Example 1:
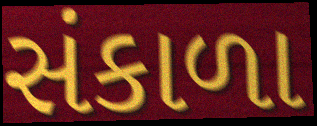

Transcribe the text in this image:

સંકાળા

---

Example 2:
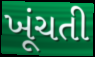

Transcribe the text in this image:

ખૂંચતી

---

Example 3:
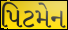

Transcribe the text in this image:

પિટમેન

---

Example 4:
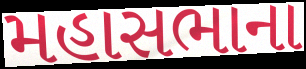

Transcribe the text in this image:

મહાસભાના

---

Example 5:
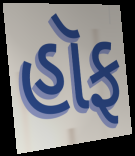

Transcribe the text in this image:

હૉફ